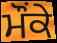
ਮੌੰਕੇ